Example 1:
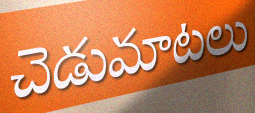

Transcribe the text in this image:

చెడుమాటలు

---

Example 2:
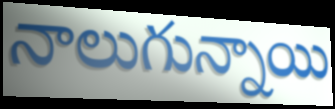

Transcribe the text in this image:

నాలుగున్నాయి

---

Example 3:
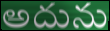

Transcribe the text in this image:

అదును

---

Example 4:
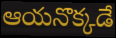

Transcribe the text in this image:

ఆయనొక్కడే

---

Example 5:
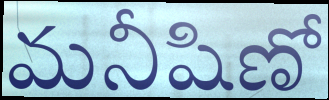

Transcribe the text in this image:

మనీషిణో